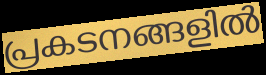
പ്രകടനങ്ങളിൽ